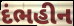
દંભહીન